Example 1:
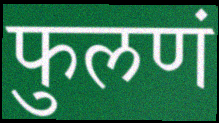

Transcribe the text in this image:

फुलणं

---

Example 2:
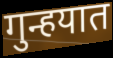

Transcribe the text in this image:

गुन्हयात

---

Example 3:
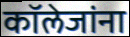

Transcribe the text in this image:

कॉलेजांना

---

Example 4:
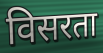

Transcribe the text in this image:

विसरता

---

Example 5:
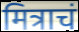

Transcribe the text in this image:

मित्राचं